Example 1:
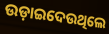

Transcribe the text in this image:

ଉଡ଼ାଇଦେଉଥିଲେ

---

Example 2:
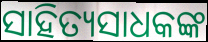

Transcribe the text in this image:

ସାହିତ୍ୟସାଧକଙ୍କ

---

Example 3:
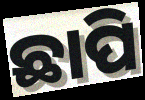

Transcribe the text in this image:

ଛାପି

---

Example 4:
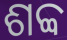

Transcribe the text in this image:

ଶବ୍ବ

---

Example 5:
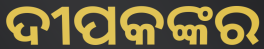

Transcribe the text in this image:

ଦୀପକଙ୍କର